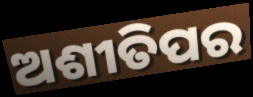
ଅଶୀତିପର